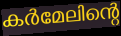
കർമേലിന്റെ